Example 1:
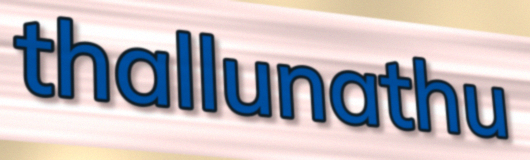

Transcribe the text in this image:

thallunathu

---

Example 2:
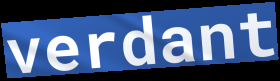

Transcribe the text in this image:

verdant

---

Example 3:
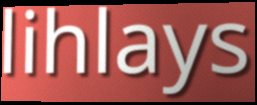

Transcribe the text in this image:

lihlays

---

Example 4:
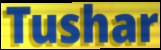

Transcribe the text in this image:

Tushar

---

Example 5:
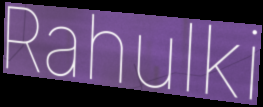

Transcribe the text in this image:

Rahulki